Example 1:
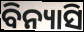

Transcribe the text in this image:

ବିନ୍ୟାସି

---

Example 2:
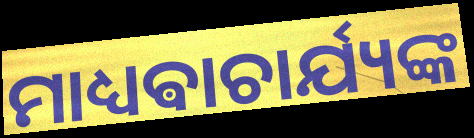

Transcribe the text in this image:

ମାଧ୍ୟଵାଚାର୍ଯ୍ୟଙ୍କ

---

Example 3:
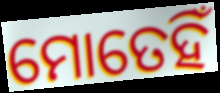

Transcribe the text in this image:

ମୋତେହିଁ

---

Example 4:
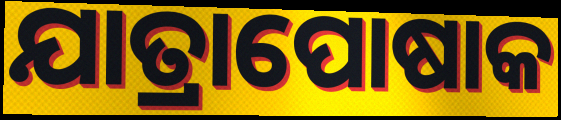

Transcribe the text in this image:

ଯାତ୍ରାପୋଷାକ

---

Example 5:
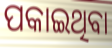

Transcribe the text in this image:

ପକାଇଥିବା